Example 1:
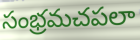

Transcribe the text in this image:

సంభ్రమచపలా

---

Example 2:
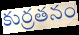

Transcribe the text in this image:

కుర్రతనం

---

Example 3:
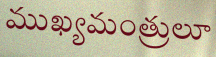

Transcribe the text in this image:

ముఖ్యమంత్రులూ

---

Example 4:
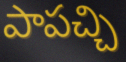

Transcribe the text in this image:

పాపచ్చి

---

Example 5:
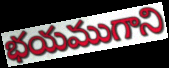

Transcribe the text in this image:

భయముగాని